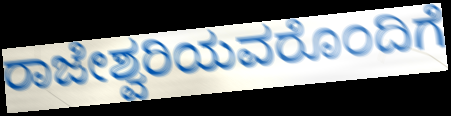
ರಾಜೇಶ್ವರಿಯವರೊಂದಿಗೆ